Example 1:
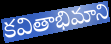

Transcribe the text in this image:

కవితాభిమాని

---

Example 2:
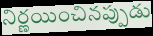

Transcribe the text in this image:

నిర్ణయించినప్పుడు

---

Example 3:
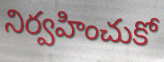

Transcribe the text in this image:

నిర్వహించుకో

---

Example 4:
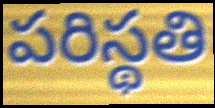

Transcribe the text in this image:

పరిస్థతి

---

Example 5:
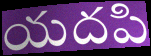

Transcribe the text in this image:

యదపి